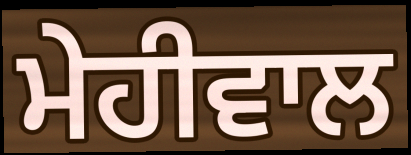
ਮੇਹੀਵਾਲ